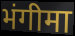
भंगीमा